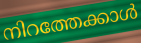
നിറത്തേക്കാൾ